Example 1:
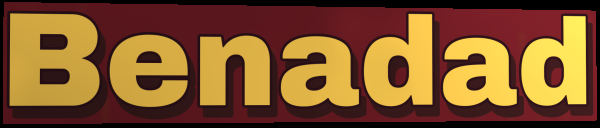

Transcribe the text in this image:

Benadad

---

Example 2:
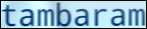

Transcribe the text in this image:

tambaram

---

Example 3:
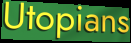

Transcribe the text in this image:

Utopians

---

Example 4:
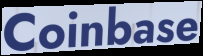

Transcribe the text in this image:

Coinbase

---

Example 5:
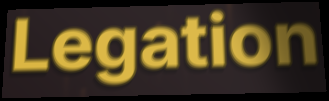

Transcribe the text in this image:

Legation